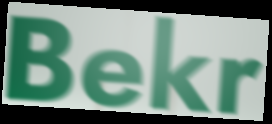
Bekr